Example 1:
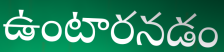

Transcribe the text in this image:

ఉంటారనడం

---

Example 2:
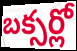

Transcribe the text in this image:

బక్సర్లో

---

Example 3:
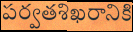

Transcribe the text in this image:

పర్వతశిఖరానికి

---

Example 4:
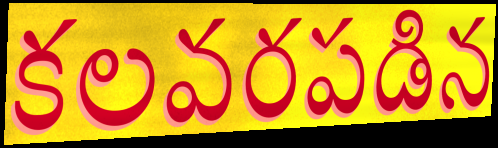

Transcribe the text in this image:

కలవరపడిన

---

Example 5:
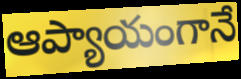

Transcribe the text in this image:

ఆప్యాయంగానే